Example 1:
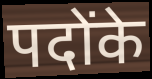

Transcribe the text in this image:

पदोंके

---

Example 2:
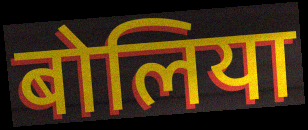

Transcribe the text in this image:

बोलिया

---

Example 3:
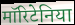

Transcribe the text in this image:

मॉरिटेनिया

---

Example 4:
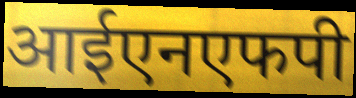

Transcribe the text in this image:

आईएनएफपी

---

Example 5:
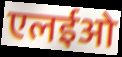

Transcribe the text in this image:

एलईओ